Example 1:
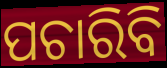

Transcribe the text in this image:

ପଚାରିବି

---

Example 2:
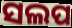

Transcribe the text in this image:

ସଲପ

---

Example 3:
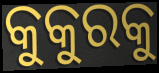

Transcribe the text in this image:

କୁକୁରକୁ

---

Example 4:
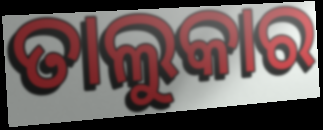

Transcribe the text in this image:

ତାଲୁକାର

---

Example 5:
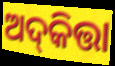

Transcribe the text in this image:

ଅଦ୍‌କିତ୍ତା